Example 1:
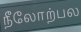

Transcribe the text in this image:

நீலோற்பல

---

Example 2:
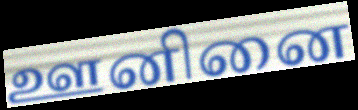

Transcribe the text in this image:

ஊனினை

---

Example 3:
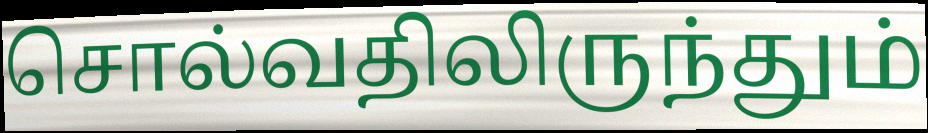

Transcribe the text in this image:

சொல்வதிலிருந்தும்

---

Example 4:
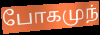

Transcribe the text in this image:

போகமுந்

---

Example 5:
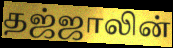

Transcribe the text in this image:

தஜ்ஜாலின்